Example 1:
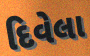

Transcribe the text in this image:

દિવેલા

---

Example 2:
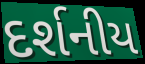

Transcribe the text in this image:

દર્શનીય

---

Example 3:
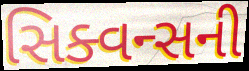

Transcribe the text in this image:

સિક્વન્સની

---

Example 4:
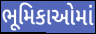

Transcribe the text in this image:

ભૂમિકાઓમાં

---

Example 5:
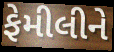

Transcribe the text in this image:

ફેમીલીને